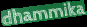
dhammika